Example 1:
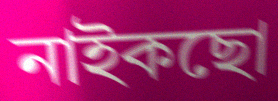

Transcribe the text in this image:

নাইকছো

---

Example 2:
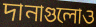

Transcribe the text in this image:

দানাগুলোও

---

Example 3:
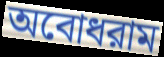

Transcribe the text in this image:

অবোধরাম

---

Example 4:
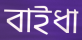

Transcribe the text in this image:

বাইধা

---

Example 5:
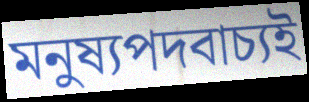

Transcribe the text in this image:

মনুষ্যপদবাচ্যই